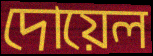
দোয়েল